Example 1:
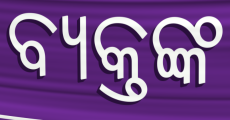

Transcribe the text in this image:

ବ୍ୟକ୍ତଙ୍କ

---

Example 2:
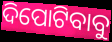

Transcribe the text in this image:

ଦିପୋଟିବାବୁ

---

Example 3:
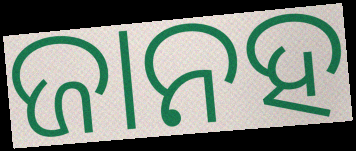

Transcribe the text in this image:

ଜାନହ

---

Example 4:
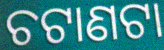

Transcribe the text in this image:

ଚଟାଣଟା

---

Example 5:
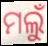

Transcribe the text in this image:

ମଲୁଁ